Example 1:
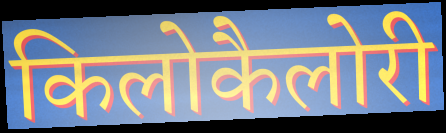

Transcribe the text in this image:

किलोकैलोरी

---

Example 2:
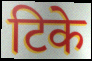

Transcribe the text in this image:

टिके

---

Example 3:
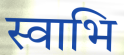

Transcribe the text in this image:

स्वाभि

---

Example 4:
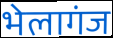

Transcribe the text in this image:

भेलागंज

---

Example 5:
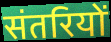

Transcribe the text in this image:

संतरियों